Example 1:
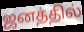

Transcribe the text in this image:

ஜனத்தில்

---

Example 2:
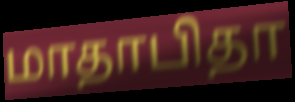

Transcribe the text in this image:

மாதாபிதா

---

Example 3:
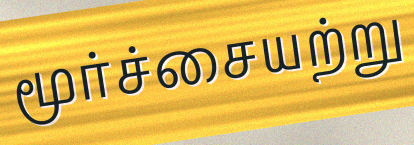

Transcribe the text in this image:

மூர்ச்சையற்று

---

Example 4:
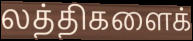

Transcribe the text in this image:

லத்திகளைக்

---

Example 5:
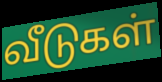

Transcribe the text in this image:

வீடுகள்